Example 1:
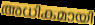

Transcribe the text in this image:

അധികമായി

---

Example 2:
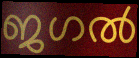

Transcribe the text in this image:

ജഗൽ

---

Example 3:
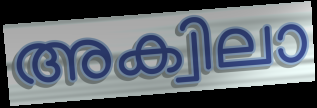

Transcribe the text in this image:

അക്വിലാ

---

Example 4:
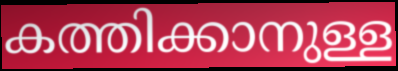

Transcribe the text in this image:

കത്തിക്കാനുള്ള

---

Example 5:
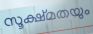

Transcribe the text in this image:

സൂക്ഷ്മതയും